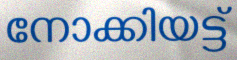
നോക്കിയട്ട്